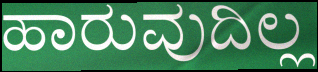
ಹಾರುವುದಿಲ್ಲ